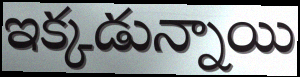
ఇక్కడున్నాయి